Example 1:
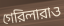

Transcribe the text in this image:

গেরিলারাও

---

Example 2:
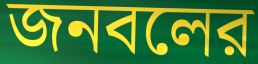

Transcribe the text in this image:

জনবলের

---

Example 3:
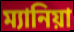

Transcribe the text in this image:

ম্যানিয়া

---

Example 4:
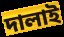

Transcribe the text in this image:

দালাই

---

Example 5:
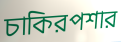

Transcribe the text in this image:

চাকিরপশার